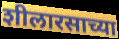
शीलारसाच्या